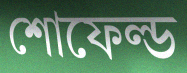
শোফেল্ড